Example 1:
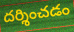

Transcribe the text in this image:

దర్శించడం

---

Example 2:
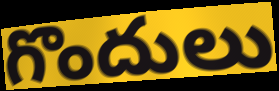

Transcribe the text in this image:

గొందులు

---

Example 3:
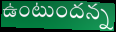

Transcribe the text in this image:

ఉంటుందన్న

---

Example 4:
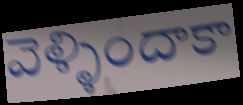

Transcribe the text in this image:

వెళ్ళిందాకా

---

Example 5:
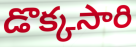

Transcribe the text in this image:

డొక్కసారి